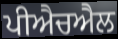
ਪੀਐਚਐਲ